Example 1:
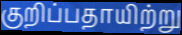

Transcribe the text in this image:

குறிப்பதாயிற்று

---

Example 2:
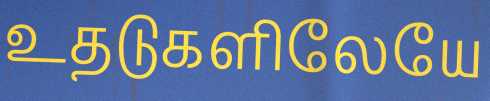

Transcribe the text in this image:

உதடுகளிலேயே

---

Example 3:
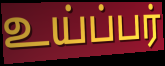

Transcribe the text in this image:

உய்ப்பர்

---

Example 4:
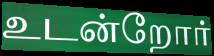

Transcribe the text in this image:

உடன்றோர்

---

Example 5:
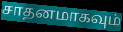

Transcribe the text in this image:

சாதனமாகவும்